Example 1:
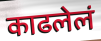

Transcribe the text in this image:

काढलेलं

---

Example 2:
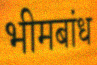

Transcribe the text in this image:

भीमबांध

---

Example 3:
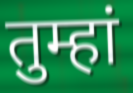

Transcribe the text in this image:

तुम्हां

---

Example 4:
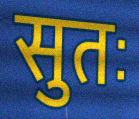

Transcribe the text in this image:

सुतः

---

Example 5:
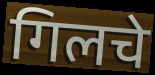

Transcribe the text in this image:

गिलचे